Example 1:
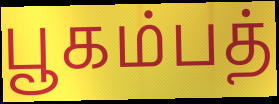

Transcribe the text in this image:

பூகம்பத்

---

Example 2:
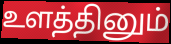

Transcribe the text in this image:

உளத்தினும்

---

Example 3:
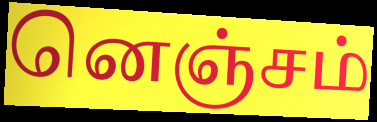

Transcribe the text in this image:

னெஞ்சம்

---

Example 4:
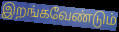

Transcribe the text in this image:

இறங்கவேண்டும்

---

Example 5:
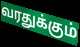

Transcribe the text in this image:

வரதுக்கும்